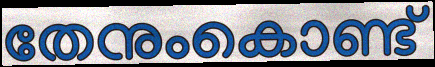
തേനുംകൊണ്ട്